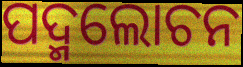
ପଦ୍ମଲୋଚନ